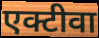
एक्टीवा